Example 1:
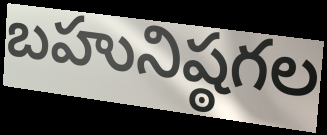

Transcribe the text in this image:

బహునిష్ఠగల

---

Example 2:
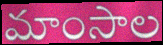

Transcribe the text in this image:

మాంసాల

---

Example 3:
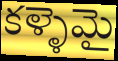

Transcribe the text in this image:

కళ్ళెమై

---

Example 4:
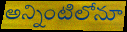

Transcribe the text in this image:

అన్నింటిలోనూ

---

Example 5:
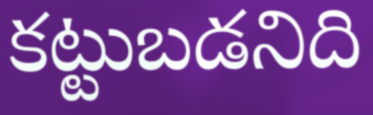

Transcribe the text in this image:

కట్టుబడనిది